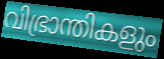
വിഭ്രാന്തികളും